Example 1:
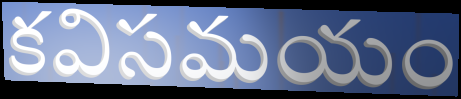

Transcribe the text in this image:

కవిసమయం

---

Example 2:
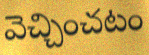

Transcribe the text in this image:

వెచ్చించటం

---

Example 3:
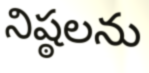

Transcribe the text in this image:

నిష్ఠలను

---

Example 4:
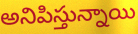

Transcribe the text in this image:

అనిపిస్తున్నాయి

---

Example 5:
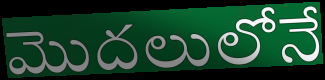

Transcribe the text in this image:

మొదలులోనే